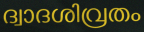
ദ്വാദശിവ്രതം